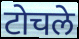
टोचले